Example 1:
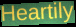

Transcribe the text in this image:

Heartily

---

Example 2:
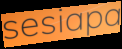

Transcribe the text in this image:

sesiapa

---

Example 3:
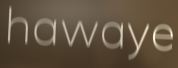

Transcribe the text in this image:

hawaye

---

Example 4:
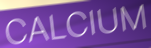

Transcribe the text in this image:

CALCIUM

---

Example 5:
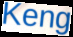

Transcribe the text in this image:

Keng